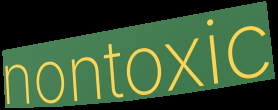
nontoxic